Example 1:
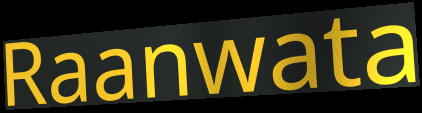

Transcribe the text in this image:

Raanwata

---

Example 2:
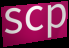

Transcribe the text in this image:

scp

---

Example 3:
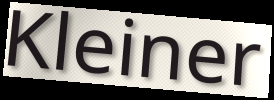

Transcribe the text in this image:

Kleiner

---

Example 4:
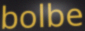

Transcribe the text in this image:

bolbe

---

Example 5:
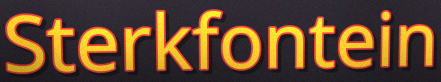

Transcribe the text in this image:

Sterkfontein